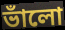
ভাঁলো